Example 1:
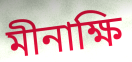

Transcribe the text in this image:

মীনাক্ষি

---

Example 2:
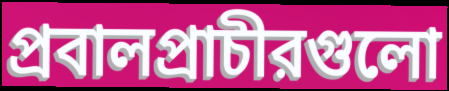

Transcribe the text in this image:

প্রবালপ্রাচীরগুলো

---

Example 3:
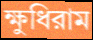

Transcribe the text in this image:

ক্ষুধিরাম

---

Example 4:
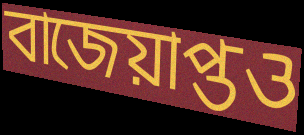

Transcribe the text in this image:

বাজেয়াপ্তও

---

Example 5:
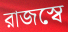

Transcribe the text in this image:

রাজস্বে